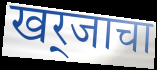
खर्जाचा